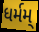
ધર્મમ્